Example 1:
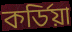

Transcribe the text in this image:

কর্ডিয়া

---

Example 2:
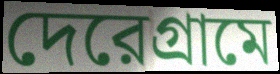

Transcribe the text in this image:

দেরেগ্রামে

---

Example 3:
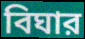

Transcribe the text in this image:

বিঘার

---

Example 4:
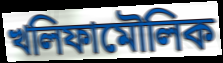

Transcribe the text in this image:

খলিফামৌলিক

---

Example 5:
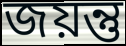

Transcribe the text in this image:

জয়ন্তু